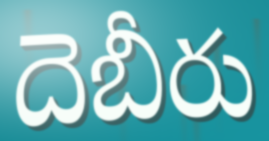
దెబీరు